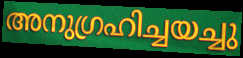
അനുഗ്രഹിച്ചയച്ചു